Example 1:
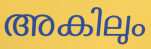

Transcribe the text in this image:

അകിലും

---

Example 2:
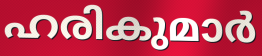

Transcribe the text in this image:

ഹരികുമാർ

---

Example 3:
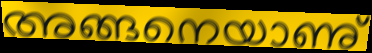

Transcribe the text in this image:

അങ്ങനെയാണു്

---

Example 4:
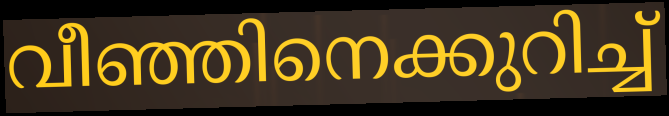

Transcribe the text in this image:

വീഞ്ഞിനെക്കുറിച്ച്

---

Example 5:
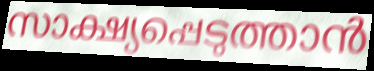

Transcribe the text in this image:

സാക്ഷ്യപ്പെടുത്താൻ